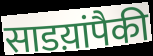
साडय़ांपैकी